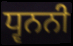
ਧ੍ਵਨਨੀ